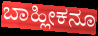
ಬಾಹ್ಲೀಕನೂ